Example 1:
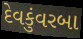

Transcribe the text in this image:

દેવકુંવરબા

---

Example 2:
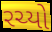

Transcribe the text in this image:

રચ્યો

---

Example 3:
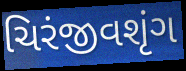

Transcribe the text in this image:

ચિરંજીવશૃંગ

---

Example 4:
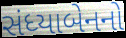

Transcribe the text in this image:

સંધ્યાબેનનો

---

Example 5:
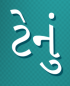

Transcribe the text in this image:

ટેનું